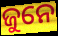
ଜୁନେ